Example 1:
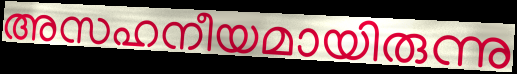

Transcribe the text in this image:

അസഹനീയമായിരുന്നു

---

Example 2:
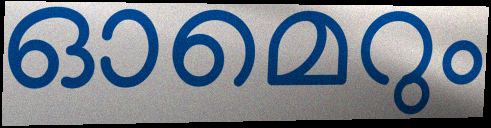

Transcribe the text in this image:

ഓമെറും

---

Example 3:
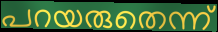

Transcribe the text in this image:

പറയരുതെന്ന്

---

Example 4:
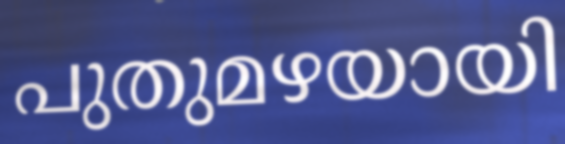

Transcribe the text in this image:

പുതുമഴയായി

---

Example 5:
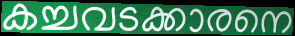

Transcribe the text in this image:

കച്ചവടക്കാരനെ